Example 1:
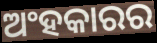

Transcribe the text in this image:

ଅଂହକାରର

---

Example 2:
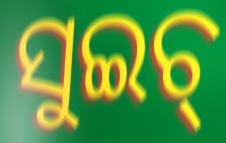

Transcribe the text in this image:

ସୁଇଚ୍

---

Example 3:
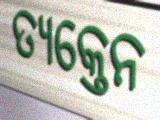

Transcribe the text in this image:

ତ୍ୟକ୍ତେନ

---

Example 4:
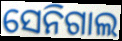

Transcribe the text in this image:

ସେନିଗାଲ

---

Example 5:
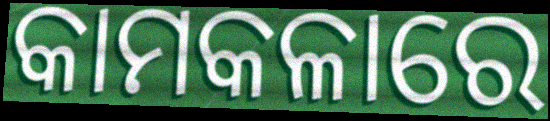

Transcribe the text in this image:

କାମକଳାରେ